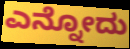
ಎನ್ನೋದು